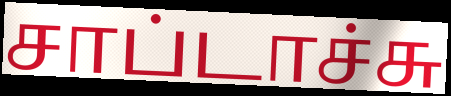
சாப்டாச்சு